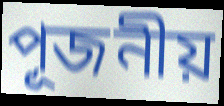
পূজনীয়